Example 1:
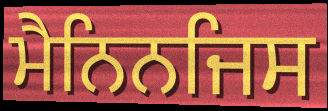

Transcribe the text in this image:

ਮੈਨਿਨਜਿਸ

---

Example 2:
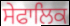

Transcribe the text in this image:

ਸੇਫਾਲਿਕ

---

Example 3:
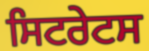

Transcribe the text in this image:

ਸਿਟਰੇਟਸ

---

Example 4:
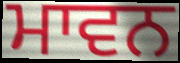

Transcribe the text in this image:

ਮਾਵਨ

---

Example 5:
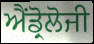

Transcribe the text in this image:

ਐਂਡ੍ਰੋਲੋਜੀ